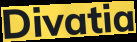
Divatia